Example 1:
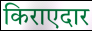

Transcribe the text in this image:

किराएदार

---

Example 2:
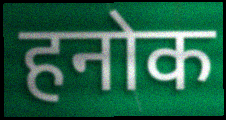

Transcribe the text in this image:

हनोक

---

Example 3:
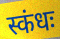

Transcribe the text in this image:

स्कंधः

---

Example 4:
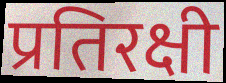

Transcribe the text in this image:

प्रतिरक्षी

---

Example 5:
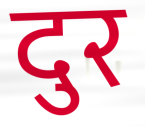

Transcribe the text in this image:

दुर